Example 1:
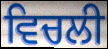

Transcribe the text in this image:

ਵਿਚਲੀ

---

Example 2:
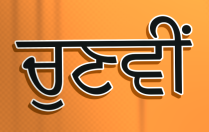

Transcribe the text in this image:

ਚੁਣਵੀਂ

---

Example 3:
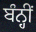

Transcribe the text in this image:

ਬੰਨ੍ਹੀਂ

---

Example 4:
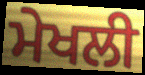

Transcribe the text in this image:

ਮੇਖਲੀ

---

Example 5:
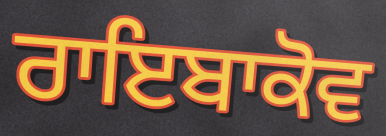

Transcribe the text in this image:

ਰਾਇਬਾਕੋਵ